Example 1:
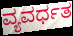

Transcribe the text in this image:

ವ್ಯವರ್ಧತ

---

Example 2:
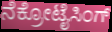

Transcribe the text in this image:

ನೆಕ್ರೋಟೈಸಿಂಗ್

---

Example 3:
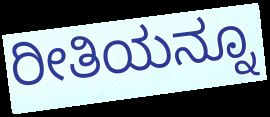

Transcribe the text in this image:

ರೀತಿಯನ್ನೂ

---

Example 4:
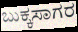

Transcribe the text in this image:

ಬುಕ್ಕಸಾಗರ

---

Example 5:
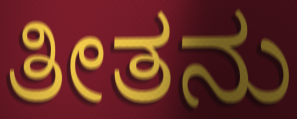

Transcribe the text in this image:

ತೀತನು